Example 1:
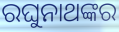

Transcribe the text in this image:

ରଘୁନାଥଙ୍କର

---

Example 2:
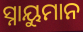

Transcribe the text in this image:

ସ୍ନାୟୁମାନ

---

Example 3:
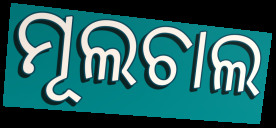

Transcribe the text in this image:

ମୂଲଚାଲ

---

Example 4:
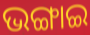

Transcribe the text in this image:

ଭଙ୍ଗାଇ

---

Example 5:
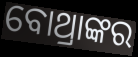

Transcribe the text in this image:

ବୋଥ୍ରାଙ୍କର